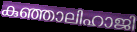
കുഞ്ഞാലിഹാജി